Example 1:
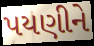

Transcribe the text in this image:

પયણીને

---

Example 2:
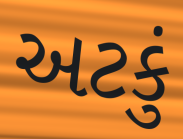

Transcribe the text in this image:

અટકું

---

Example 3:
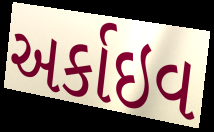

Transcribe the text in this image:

અર્કાઇવ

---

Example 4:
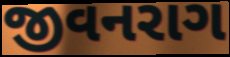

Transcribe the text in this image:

જીવનરાગ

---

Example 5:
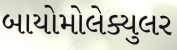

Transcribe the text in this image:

બાયોમોલેક્યુલર